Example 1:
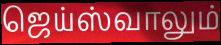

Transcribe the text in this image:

ஜெய்ஸ்வாலும்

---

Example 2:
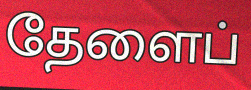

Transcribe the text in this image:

தேளைப்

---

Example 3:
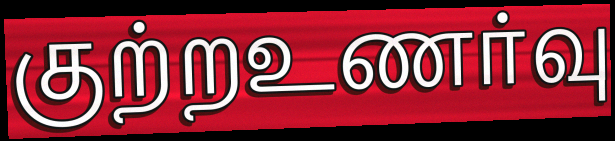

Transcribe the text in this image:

குற்றஉணர்வு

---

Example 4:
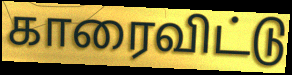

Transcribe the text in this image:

காரைவிட்டு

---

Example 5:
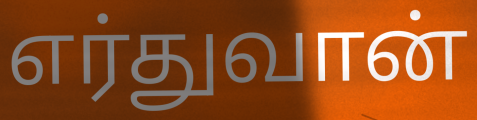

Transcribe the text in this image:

எர்துவான்